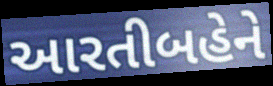
આરતીબહેને